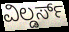
ವಿಲ್ಡರ್ಸ್